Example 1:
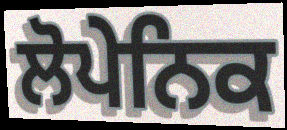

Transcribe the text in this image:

ਲੋਪੇਨਿਕ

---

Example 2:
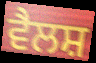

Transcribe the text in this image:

ਵੈਲਸ਼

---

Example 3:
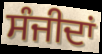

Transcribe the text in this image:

ਸੰਜੀਦਾਂ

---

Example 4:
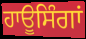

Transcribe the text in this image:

ਹਾਊਸਿੰਗਾਂ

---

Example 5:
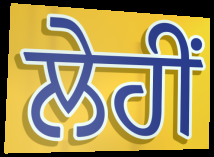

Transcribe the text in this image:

ਲੇਹੀਂ